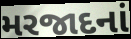
મરજાદનાં